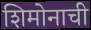
शिमोनाची